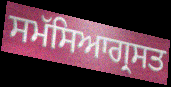
ਸਮੱਸਿਆਗ੍ਰਸਤ